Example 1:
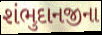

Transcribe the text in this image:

શંભુદાનજીના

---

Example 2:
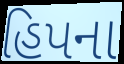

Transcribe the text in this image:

હિપના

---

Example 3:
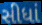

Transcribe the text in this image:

સીધાં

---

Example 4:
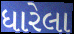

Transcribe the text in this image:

ધારેલા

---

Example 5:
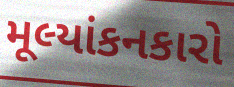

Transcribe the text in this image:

મૂલ્યાંકનકારો